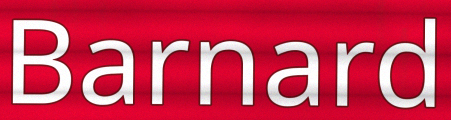
Barnard